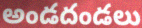
అండదండలు